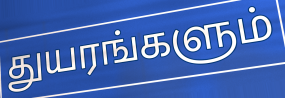
துயரங்களும்